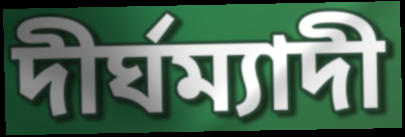
দীৰ্ঘম্যাদী